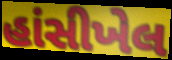
હાંસીખેલ